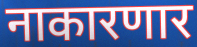
नाकारणार